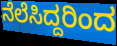
ನೆಲೆಸಿದ್ದರಿಂದ